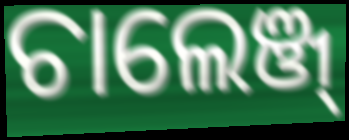
ଚାଲେଞ୍ଜ୍